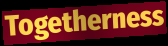
Togetherness